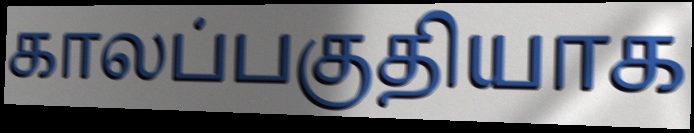
காலப்பகுதியாக